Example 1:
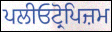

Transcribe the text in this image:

ਪਲੀਓਟ੍ਰੋਪਿਜ਼ਮ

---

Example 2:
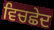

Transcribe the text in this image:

ਵਿਚਛੇਦ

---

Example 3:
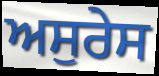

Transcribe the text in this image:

ਅਸੁਰੇਸ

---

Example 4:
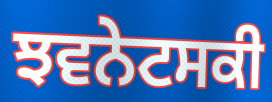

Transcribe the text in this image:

ਝਵਨੇਟਸਕੀ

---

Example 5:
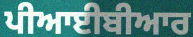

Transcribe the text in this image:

ਪੀਆਈਬੀਆਰ